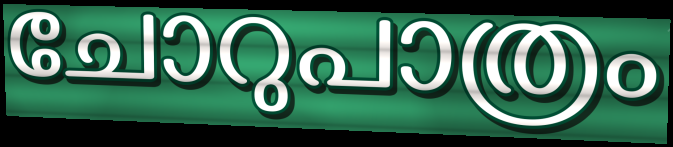
ചോറുപാത്രം